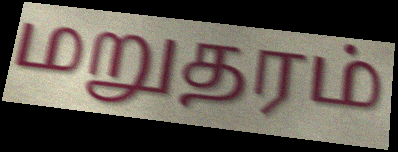
மறுதரம்